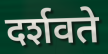
दर्शवते